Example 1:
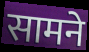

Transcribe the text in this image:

सामने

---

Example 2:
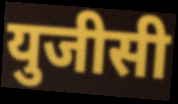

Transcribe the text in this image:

युजीसी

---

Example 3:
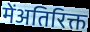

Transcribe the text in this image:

मेंअतिरिक्त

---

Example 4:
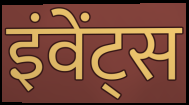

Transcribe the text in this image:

इंवेंट्स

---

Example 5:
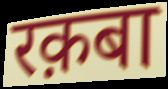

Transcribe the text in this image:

रक़बा